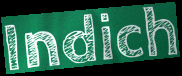
Indich